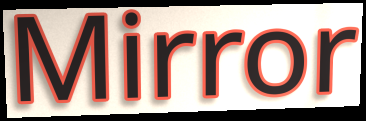
Mirror